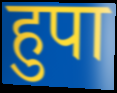
हुपा